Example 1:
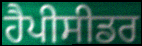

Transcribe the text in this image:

ਹੈਪੀਸੀਡਰ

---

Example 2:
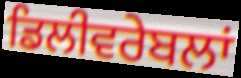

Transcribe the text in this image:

ਡਿਲੀਵਰੇਬਲਾਂ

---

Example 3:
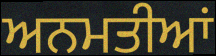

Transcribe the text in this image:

ਅਨਮਤੀਆਂ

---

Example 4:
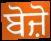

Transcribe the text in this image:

ਬੋਜ਼ੋ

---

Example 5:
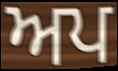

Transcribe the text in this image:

ਅਪ